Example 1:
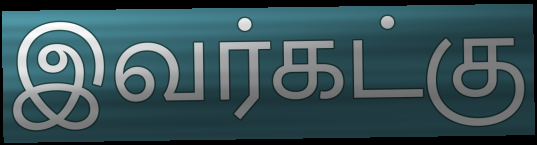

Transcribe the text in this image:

இவர்கட்கு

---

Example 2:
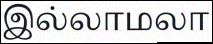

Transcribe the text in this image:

இல்லாமலா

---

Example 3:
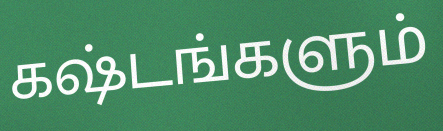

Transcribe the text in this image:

கஷ்டங்களும்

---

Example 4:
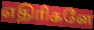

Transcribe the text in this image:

எதிரிகளே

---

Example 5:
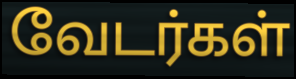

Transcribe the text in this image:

வேடர்கள்